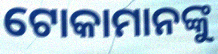
ଟୋକାମାନଙ୍କୁ